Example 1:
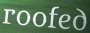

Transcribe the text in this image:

roofed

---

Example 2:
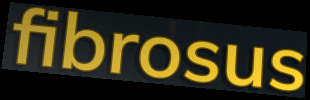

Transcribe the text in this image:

fibrosus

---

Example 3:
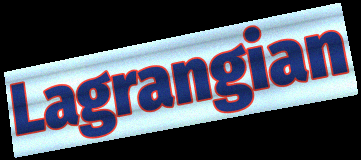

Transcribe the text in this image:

Lagrangian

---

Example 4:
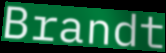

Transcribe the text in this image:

Brandt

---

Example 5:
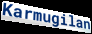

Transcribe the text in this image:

Karmugilan